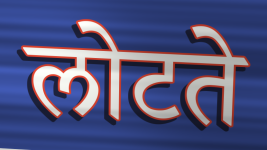
लोटते